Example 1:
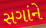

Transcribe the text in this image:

સગાંને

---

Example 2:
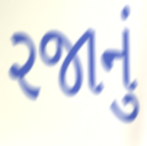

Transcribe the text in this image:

રજાનું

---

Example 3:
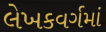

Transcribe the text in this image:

લેખકવર્ગમાં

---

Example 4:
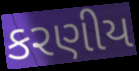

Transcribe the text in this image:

કરણીય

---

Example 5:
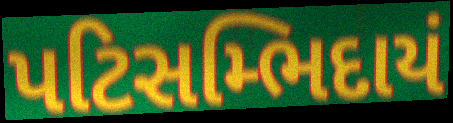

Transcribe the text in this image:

પટિસમ્ભિદાયં